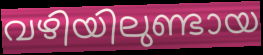
വഴിയിലുണ്ടായ